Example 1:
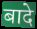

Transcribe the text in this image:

बादे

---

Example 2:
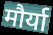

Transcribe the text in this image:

मौर्या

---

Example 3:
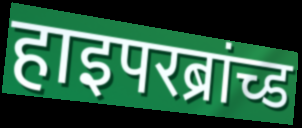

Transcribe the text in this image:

हाइपरब्रांच्ड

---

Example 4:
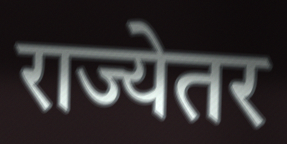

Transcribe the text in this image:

राज्येतर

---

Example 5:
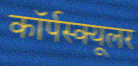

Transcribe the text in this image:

कॉर्पस्क्यूलर